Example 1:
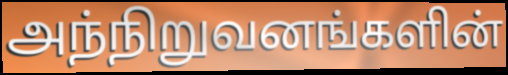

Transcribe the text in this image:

அந்நிறுவனங்களின்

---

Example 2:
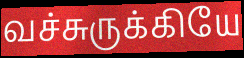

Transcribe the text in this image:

வச்சுருக்கியே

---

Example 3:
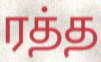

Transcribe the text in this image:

ரத்த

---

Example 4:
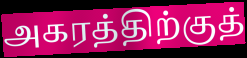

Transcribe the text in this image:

அகரத்திற்குத்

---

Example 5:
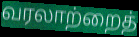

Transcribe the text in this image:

வரலாற்றைத்